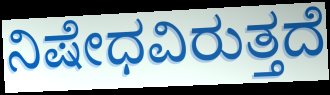
ನಿಷೇಧವಿರುತ್ತದೆ